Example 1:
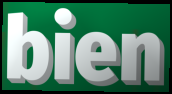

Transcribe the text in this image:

bien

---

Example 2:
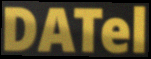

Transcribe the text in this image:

DATel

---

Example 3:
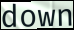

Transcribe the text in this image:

down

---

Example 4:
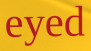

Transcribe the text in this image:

eyed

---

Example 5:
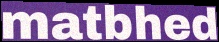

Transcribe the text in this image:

matbhed